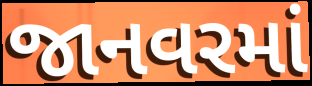
જાનવરમાં